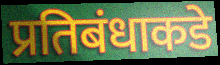
प्रतिबंधाकडे